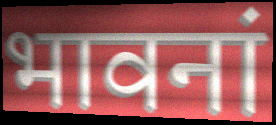
भावनां